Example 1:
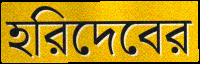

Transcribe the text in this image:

হরিদেবের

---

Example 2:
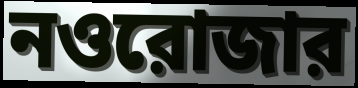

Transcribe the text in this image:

নওরোজার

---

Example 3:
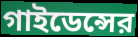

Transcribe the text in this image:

গাইডেন্সের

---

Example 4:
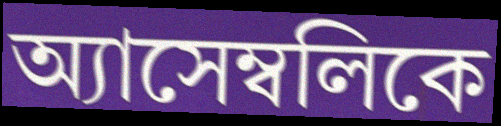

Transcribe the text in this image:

অ্যাসেম্বলিকে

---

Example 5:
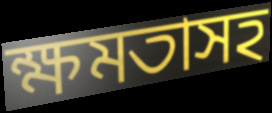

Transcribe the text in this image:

ক্ষমতাসহ